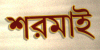
শরমাই